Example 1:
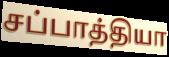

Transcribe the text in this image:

சப்பாத்தியா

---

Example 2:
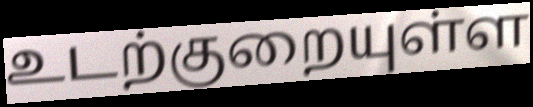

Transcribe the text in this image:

உடற்குறையுள்ள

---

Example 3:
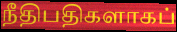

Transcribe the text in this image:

நீதிபதிகளாகப்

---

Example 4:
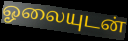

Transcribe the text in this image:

ஓலையுடன்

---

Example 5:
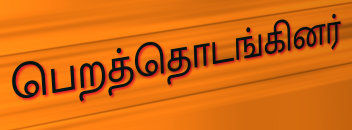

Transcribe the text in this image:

பெறத்தொடங்கினர்